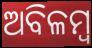
ଅବିଳମ୍ବ